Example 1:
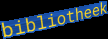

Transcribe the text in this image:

bibliotheek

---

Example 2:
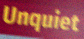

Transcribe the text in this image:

Unquiet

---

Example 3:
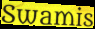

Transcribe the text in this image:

Swamis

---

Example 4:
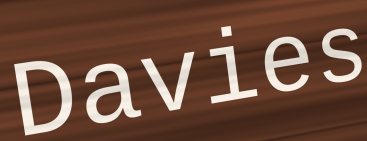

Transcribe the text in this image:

Davies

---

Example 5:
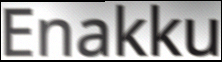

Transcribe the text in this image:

Enakku